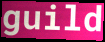
guild